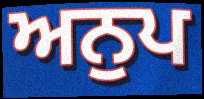
ਅਨੁਪ